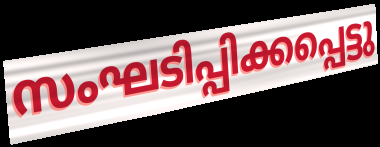
സംഘടിപ്പിക്കപ്പെട്ടു